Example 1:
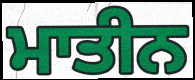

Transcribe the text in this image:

ਮਾਤੀਨ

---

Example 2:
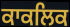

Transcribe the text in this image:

ਕਾਕਲਿਕ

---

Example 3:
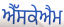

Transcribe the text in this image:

ਐੱਸਕੇਐਮ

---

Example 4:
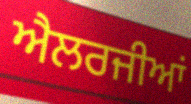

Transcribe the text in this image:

ਐਲਰਜੀਆਂ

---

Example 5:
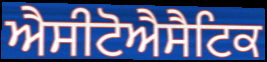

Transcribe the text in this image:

ਐਸੀਟੋਐਸੈਟਿਕ